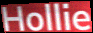
Hollie